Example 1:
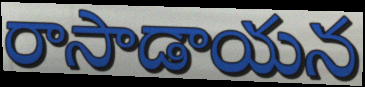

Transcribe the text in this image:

రాసాడాయన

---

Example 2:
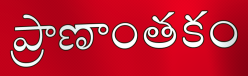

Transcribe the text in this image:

ప్రాణాంతకం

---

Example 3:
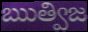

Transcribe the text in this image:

ఋత్విజ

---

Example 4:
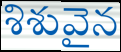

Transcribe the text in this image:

శిశువైన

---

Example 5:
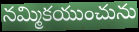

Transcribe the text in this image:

నమ్మికయుంచును